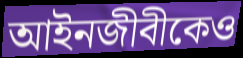
আইনজীবীকেও